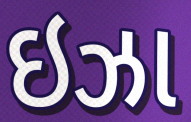
ઇઝા